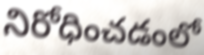
నిరోధించడంలో